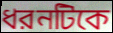
ধরনটিকে